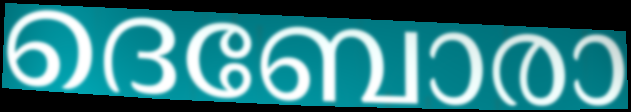
ദെബോരാ